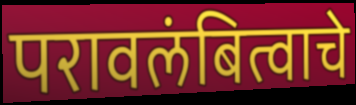
परावलंबित्वाचे